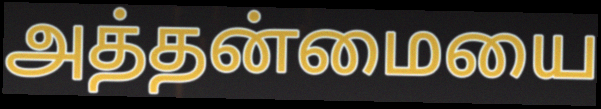
அத்தன்மையை